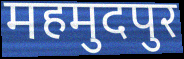
महमुदपुर